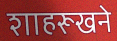
शाहरूखने